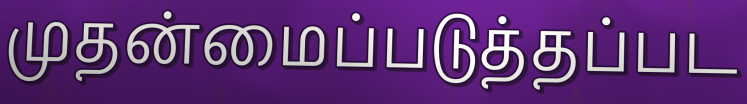
முதன்மைப்படுத்தப்பட